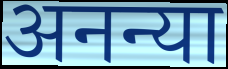
अनन्या